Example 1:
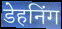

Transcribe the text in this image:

डेहनिंग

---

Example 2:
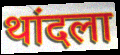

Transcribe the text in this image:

थांदला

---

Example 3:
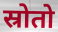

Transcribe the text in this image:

स्रोतो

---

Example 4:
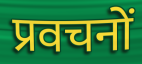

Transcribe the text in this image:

प्रवचनों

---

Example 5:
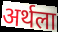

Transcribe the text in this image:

अर्थला